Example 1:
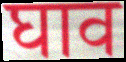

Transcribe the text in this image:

घाव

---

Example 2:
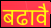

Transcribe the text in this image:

बढावै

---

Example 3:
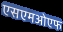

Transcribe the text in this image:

एसएमओएफ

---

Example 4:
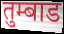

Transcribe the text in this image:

तुम्बाड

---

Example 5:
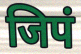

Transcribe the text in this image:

जिपं